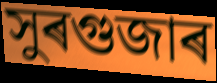
সুৰগুজাৰ